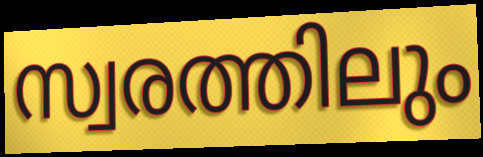
സ്വരത്തിലും